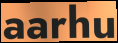
aarhu